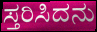
ಸ್ತರಿಸಿದನು